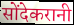
सोंदेकरानी